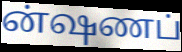
ன்ஷணப்